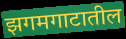
झगमगाटातील